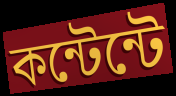
কন্টেন্টে